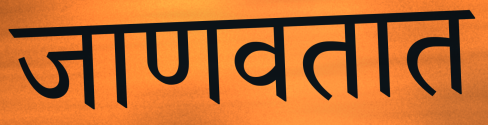
जाणवतात